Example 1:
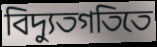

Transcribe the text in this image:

বিদ্যুতগতিতে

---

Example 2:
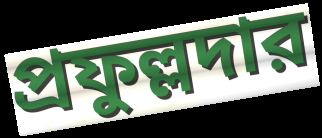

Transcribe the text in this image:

প্রফুল্লদার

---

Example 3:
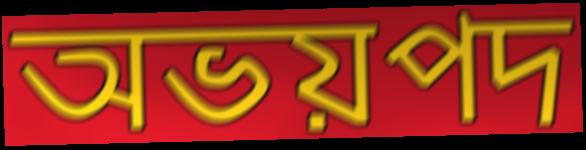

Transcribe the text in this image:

অভয়পদ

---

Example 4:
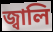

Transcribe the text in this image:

জ্বালি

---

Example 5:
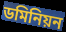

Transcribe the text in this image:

ডমিনিয়ন